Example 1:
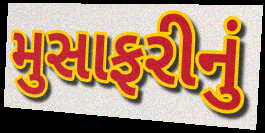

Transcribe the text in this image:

મુસાફરીનું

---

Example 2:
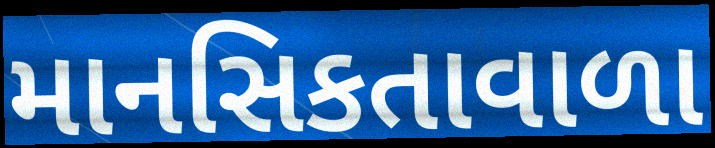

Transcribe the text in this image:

માનસિકતાવાળા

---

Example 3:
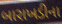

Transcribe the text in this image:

બારાખડીના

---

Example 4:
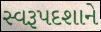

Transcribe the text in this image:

સ્વરૂપદશાને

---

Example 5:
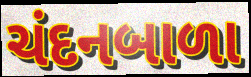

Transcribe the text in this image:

ચંદનબાળા